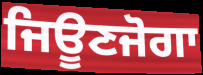
ਜਿਊਣਜੋਗਾ